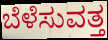
ಬೆಳೆಸುವತ್ತ